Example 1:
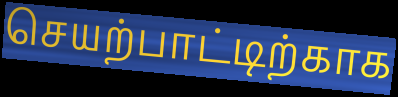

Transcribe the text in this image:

செயற்பாட்டிற்காக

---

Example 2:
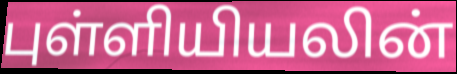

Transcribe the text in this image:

புள்ளியியலின்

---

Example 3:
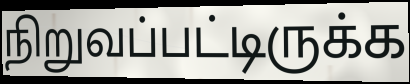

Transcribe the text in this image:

நிறுவப்பட்டிருக்க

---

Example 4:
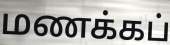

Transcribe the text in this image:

மணக்கப்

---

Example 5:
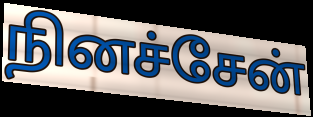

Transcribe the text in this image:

நினச்சேன்